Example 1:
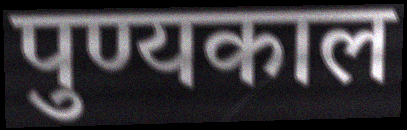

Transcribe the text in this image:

पुण्यकाल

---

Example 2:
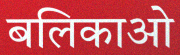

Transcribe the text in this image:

बलिकाओ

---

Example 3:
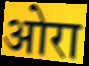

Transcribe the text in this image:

ओरा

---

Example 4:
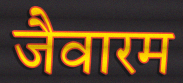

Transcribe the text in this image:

जैवारम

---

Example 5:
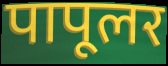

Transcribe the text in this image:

पापूलर